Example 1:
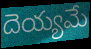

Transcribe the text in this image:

దెయ్యమే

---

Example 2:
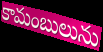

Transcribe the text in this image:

కామంబులును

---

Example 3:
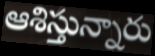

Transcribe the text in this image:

ఆశిస్తున్నారు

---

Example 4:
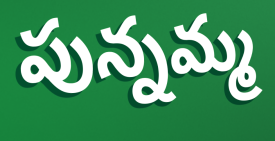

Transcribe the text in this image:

పున్నమ్మ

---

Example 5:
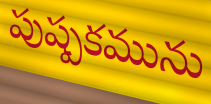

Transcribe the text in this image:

పుష్పకమును